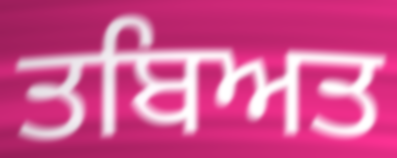
ਤਬਿਅਤ